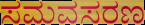
ಸಮವಸರಣ